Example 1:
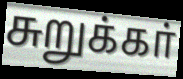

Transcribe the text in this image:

சுறுக்கர்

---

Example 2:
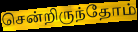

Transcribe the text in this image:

சென்றிருந்தோம்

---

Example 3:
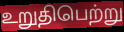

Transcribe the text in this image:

உறுதிபெற்று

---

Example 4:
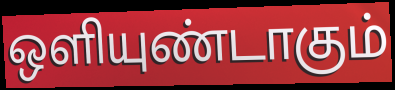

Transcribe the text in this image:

ஒளியுண்டாகும்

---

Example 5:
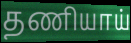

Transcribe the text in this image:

தணியாய்